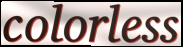
colorless